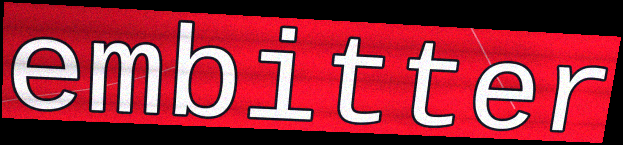
embitter